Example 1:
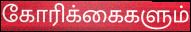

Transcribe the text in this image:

கோரிக்கைகளும்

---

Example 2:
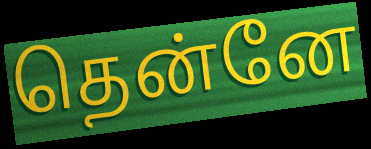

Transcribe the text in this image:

தென்னே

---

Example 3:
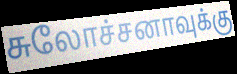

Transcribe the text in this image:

சுலோச்சனாவுக்கு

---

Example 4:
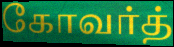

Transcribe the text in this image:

கோவர்த்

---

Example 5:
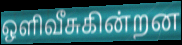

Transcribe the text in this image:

ஒளிவீசுகின்றன